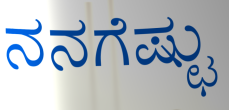
ನನಗೆಷ್ಟು